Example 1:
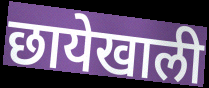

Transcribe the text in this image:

छायेखाली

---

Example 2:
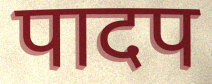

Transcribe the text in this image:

पादप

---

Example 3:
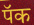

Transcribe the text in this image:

पॅक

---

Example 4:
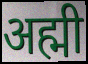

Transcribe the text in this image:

अह्मी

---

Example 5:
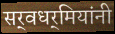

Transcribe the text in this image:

सर्वधर्मियांनी